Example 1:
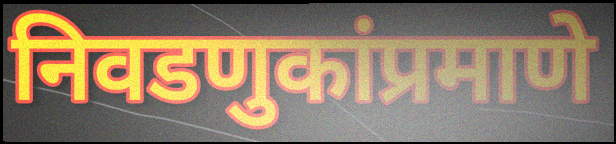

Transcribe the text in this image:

निवडणुकांप्रमाणे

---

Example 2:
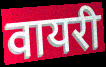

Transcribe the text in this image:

वायरी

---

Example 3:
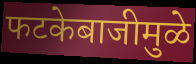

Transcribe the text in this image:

फटकेबाजीमुळे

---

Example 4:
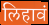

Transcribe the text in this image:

लिहावं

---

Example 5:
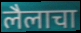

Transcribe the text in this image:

लैलाचा